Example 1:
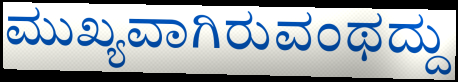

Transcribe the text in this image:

ಮುಖ್ಯವಾಗಿರುವಂಥದ್ದು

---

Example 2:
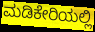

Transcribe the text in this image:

ಮಡಿಕೇರಿಯಲ್ಲಿ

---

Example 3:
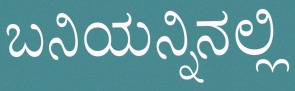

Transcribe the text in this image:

ಬನಿಯನ್ನಿನಲ್ಲಿ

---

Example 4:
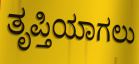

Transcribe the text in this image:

ತೃಪ್ತಿಯಾಗಲು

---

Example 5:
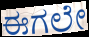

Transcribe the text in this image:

ಈಗಲೇ